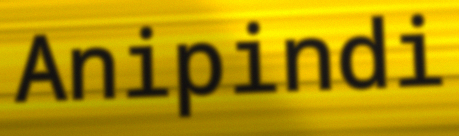
Anipindi